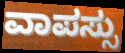
ವಾಪಸ್ಸು